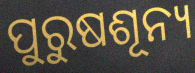
ପୁରୁଷଶୂନ୍ୟ